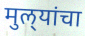
मुल्यांचा